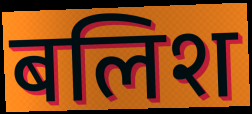
बलिश